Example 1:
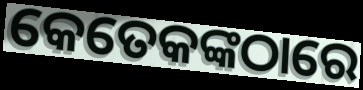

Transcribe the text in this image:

କେତେକଙ୍କଠାରେ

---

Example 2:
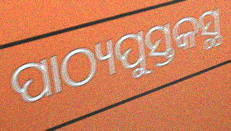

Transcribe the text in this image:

ପାଠ୍ୟପୁସ୍ତକସ୍ଥ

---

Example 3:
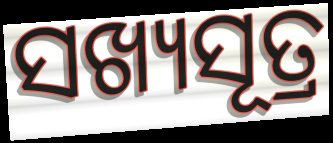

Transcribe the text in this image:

ସଖ୍ୟସୂତ୍ର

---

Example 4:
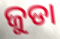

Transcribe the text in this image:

ଜୁଡା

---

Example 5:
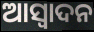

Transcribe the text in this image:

ଆସ୍ଵାଦନ